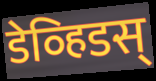
डेव्हिडस्